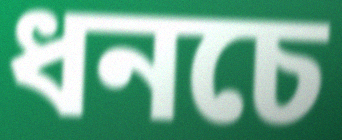
ধনচে